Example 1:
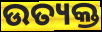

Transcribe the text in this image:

ଉତ୍ୟକ୍ତ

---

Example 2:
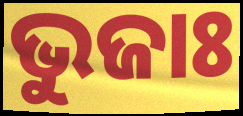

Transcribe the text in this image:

ଭୁଜାଃ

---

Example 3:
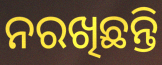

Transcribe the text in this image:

ନରଖିଛନ୍ତି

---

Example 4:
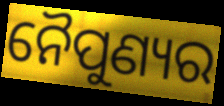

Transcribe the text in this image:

ନୈପୁଣ୍ୟର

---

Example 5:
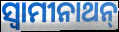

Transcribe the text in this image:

ସ୍ବାମୀନାଥନ୍